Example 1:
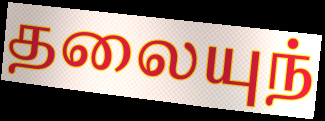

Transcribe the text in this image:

தலையுந்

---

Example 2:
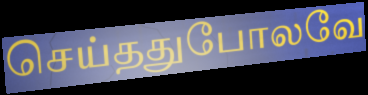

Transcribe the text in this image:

செய்ததுபோலவே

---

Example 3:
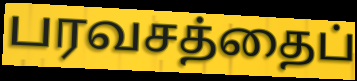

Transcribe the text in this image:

பரவசத்தைப்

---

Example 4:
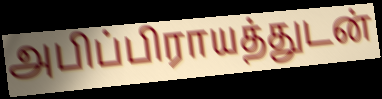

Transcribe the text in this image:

அபிப்பிராயத்துடன்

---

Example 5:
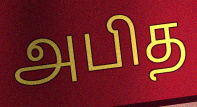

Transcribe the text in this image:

அபித